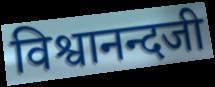
विश्वानन्दजी